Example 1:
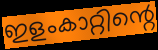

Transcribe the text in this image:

ഇളംകാറ്റിന്റെ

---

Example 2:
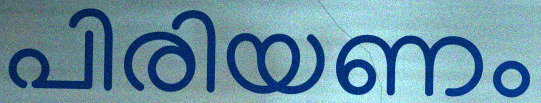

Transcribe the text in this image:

പിരിയണം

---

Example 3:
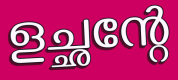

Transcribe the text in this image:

ളച്ഛന്റേ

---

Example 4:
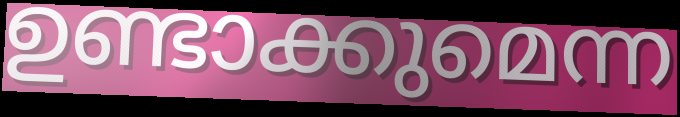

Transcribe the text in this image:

ഉണ്ടാക്കുമെന്ന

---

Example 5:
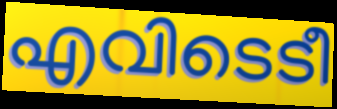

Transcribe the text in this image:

എവിടെടീ